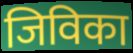
जिविका